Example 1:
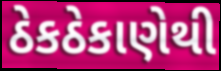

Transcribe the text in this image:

ઠેકઠેકાણેથી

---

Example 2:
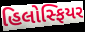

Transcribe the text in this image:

હિલોસ્ફિયર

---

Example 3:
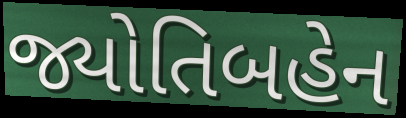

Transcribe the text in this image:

જ્યોતિબહેન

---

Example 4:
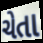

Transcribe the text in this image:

ચેતા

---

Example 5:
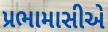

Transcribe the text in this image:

પ્રભામાસીએ